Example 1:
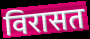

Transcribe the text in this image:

विरासत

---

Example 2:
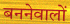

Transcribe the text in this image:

बननेवालों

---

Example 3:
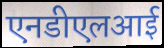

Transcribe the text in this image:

एनडीएलआई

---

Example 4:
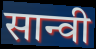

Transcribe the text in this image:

सान्वी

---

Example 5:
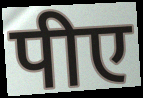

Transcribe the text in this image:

पीए